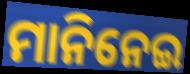
ମାନିନେଇ